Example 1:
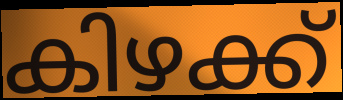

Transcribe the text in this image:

കിഴക്ക്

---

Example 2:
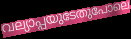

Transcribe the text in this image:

വല്യാപ്പയുടേതുപോലെ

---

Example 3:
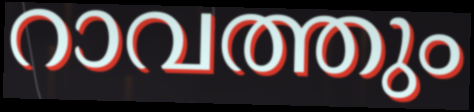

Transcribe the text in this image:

റാവത്തും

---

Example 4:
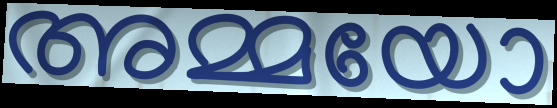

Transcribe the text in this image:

അമ്മയോ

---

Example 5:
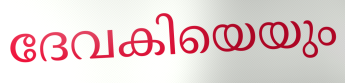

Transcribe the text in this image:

ദേവകിയെയും